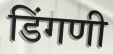
डिंगणी